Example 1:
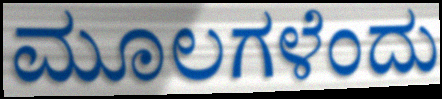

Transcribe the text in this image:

ಮೂಲಗಳೆಂದು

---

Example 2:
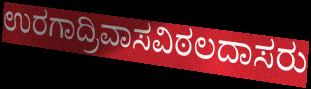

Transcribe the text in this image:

ಉರಗಾದ್ರಿವಾಸವಿಠಲದಾಸರು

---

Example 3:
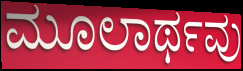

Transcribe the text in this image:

ಮೂಲಾರ್ಥವು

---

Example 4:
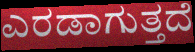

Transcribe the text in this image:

ಎರಡಾಗುತ್ತದೆ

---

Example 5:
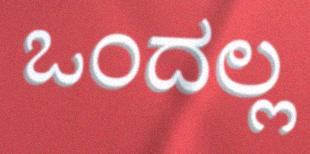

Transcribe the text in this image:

ಒಂದಲ್ಲ